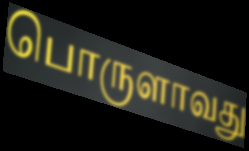
பொருளாவது